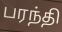
பரந்தி